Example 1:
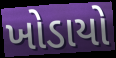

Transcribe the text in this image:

ખોડાયો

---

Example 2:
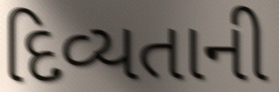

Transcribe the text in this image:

દિવ્યતાની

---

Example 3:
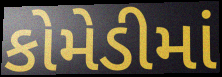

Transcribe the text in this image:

કોમેડીમાં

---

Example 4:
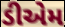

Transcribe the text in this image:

ડીએમ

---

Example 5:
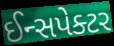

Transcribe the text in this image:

ઈન્સપેક્ટર